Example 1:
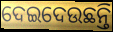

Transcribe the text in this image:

ଦେଇଦେଉଛନ୍ତି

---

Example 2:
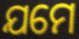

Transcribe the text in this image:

ଯମେ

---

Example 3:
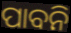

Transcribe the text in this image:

ପାବନି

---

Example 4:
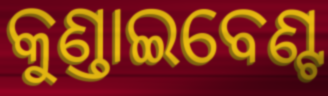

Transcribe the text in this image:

କୁଣ୍ଡାଇବେଣ୍ଟ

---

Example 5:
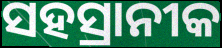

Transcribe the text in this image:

ସହସ୍ରାନୀକ